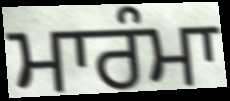
ਮਾਰੰਮਾ